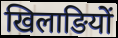
खिलाङियों